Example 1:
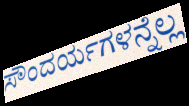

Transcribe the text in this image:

ಸೌಂದರ್ಯಗಳನ್ನೆಲ್ಲ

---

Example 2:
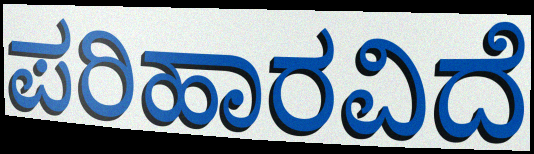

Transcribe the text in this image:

ಪರಿಹಾರವಿದೆ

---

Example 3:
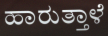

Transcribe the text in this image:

ಹಾರುತ್ತಾಳೆ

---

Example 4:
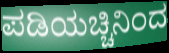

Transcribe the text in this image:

ಪಡಿಯಚ್ಚಿನಿಂದ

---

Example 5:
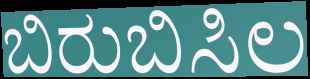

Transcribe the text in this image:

ಬಿರುಬಿಸಿಲ